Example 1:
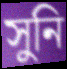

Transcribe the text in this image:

সুনি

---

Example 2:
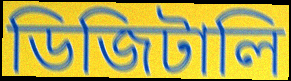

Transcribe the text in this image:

ডিজিটালি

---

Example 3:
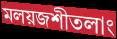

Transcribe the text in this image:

মলয়জশীতলাং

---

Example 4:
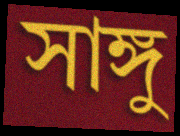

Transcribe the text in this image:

সাঙ্গু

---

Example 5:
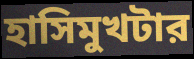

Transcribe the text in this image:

হাসিমুখটার